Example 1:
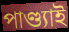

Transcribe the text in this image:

পাণ্ড্যাই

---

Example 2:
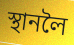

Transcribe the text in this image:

স্থানলৈ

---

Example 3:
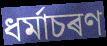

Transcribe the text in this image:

ধৰ্মাচৰণ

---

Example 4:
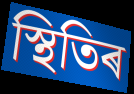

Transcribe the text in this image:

স্থিতিৰ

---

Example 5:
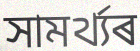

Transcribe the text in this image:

সামৰ্থ্যৰ